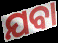
ଯବା